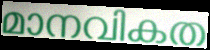
മാനവികത